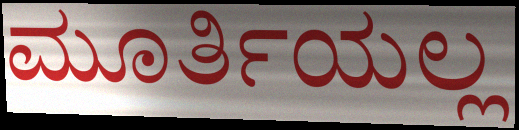
ಮೂರ್ತಿಯಲ್ಲ